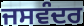
ਜਸਵੰਦਰ